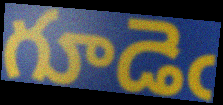
గూడెఁ